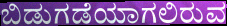
ಬಿಡುಗಡೆಯಾಗಲಿರುವ